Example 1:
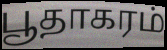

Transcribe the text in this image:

பூதாகரம்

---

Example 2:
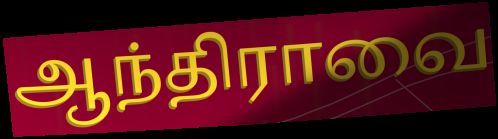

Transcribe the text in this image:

ஆந்திராவை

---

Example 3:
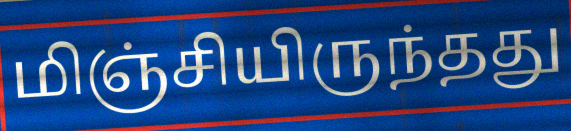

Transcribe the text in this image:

மிஞ்சியிருந்தது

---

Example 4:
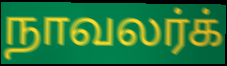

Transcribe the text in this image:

நாவலர்க்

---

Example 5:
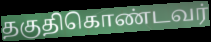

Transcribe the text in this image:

தகுதிகொண்டவர்